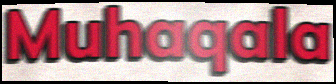
Muhaqala